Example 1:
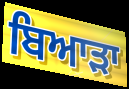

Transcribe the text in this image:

ਬਿਆੜਾ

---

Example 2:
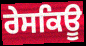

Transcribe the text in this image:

ਰੇਸਕਿਊ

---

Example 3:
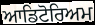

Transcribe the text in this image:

ਆਡਿਟੋਰਿਅਮ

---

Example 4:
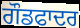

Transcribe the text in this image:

ਗੌਡਫਾਦਰ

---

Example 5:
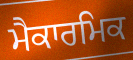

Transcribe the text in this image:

ਮੈਕਾਰਮਿਕ